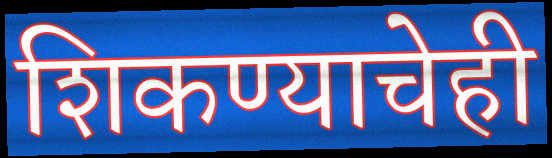
शिकण्याचेही